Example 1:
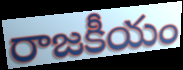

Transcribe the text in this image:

రాజకీయం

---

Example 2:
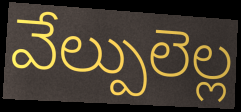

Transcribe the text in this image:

వేల్పులెల్ల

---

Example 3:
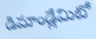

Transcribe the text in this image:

డిమాండ్లేమిటో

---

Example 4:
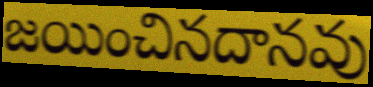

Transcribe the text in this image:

జయించినదానవు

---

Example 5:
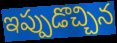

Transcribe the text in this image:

ఇప్పుడొచ్చిన